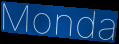
Monda